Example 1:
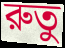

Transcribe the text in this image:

রুতু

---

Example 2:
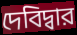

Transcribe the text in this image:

দেবিদ্বার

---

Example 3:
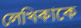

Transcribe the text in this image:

লেখিকাকে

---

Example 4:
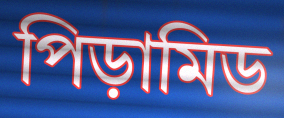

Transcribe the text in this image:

পিড়ামিড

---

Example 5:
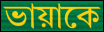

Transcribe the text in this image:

ভায়াকে